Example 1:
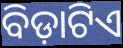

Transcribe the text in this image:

ବିଡ଼ାଟିଏ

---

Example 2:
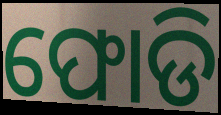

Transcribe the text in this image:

ଫୋଡି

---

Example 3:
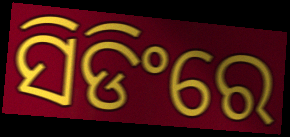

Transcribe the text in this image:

ସିଡିଂରେ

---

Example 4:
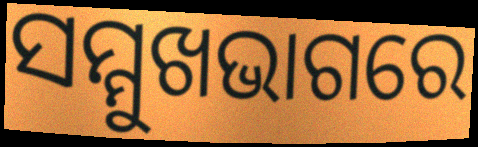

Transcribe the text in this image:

ସମ୍ମୁଖଭାଗରେ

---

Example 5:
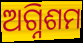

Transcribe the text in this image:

ଅଗ୍ନିଶମ